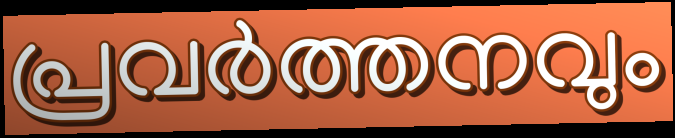
പ്രവർത്തനവും